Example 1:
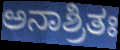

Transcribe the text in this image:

ಅನಾಶ್ರಿತಃ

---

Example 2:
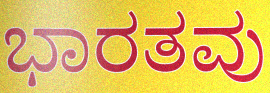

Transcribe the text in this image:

ಭಾರತವು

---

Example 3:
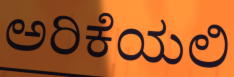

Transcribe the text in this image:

ಅರಿಕೆಯಲಿ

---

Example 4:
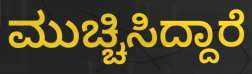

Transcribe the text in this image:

ಮುಚ್ಚಿಸಿದ್ದಾರೆ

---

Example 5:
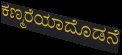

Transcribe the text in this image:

ಕಣ್ಮರೆಯಾದೊಡನೆ